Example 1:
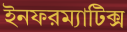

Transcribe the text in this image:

ইনফরম্যাটিক্স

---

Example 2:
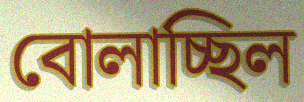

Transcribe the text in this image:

বোলাচ্ছিল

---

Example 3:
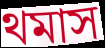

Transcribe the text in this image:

থমাস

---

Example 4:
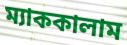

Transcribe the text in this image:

ম্যাককালাম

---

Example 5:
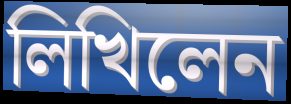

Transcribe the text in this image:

লিখিলেন